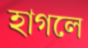
হাগলে